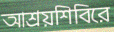
আশ্রয়শিবিরে